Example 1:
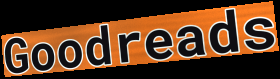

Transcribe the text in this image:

Goodreads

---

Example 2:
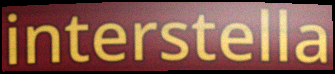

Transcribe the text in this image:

interstella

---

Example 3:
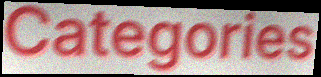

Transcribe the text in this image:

Categories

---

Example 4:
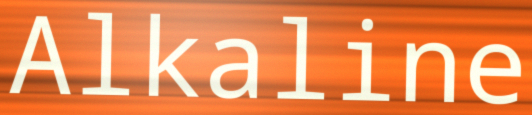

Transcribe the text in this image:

Alkaline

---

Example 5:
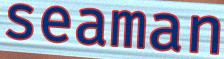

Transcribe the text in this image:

seaman